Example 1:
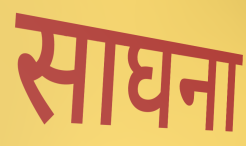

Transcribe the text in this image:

साघना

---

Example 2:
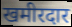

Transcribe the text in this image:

खमीरदार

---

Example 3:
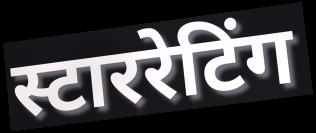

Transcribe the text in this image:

स्टाररेटिंग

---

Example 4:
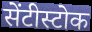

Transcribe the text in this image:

सेंटीस्टोक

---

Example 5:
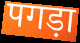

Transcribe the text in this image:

पगड़ा